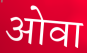
ओवा